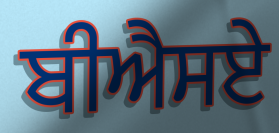
ਬੀਐਸਏ